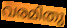
വരമിതു